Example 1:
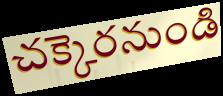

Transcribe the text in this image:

చక్కెరనుండి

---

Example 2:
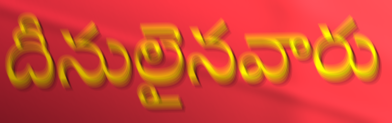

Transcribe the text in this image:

దీనులైనవారు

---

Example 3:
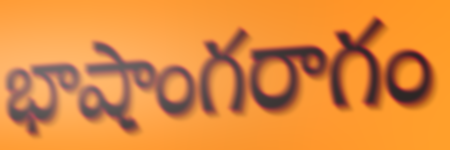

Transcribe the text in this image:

భాషాంగరాగం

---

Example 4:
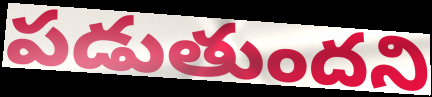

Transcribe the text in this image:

పడుతుందని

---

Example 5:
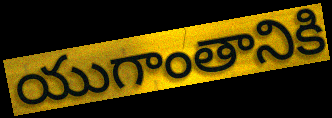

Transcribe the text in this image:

యుగాంతానికి